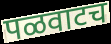
पळवाटच